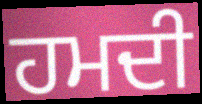
ਹਮਦੀ